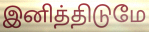
இனித்திடுமே